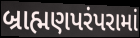
બ્રાહ્મણપરંપરામાં